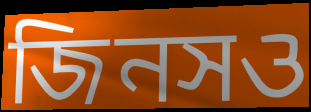
জিনসও